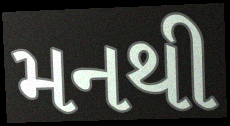
મનથી